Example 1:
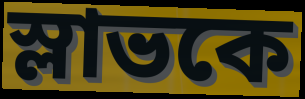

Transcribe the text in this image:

স্লাভকে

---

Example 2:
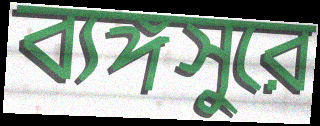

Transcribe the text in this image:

ব্যঙ্গসুরে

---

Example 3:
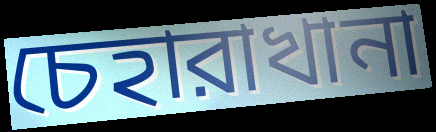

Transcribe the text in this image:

চেহারাখানা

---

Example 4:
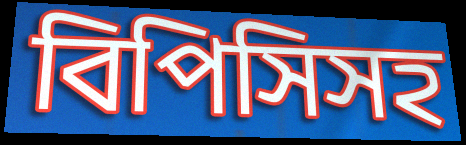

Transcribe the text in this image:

বিপিসিসহ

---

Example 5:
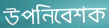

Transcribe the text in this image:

উপনিবেশক